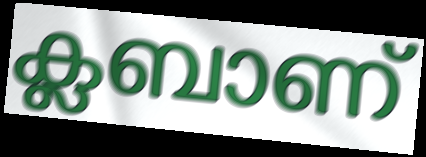
ക്ലബാണ്